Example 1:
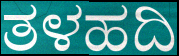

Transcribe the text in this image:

ತಳಹದಿ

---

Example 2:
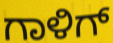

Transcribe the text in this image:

ಗಾಳಿಗ್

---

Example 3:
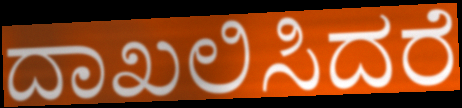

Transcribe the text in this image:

ದಾಖಲಿಸಿದರೆ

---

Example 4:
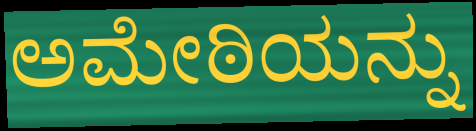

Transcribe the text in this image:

ಅಮೇಠಿಯನ್ನು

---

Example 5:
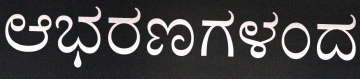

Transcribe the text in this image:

ಆಭರಣಗಳಂದ